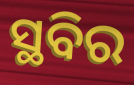
ସ୍ଥବିର